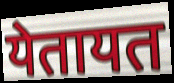
येतायत